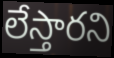
లేస్తారని